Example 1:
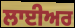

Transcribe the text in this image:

ਲਾਈਅਰ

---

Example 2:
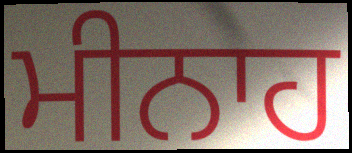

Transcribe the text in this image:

ਮੀਨਾਹ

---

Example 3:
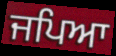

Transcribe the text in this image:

ਜਪਿਆ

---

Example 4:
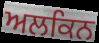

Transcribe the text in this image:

ਅਲਕਿਨ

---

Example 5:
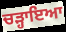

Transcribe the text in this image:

ਚੜ੍ਹਾਇਆ